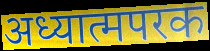
अध्यात्मपरक